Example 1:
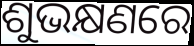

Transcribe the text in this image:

ଶୁଭକ୍ଷଣରେ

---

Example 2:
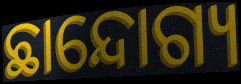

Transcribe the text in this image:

ଛାନ୍ଦୋଗ୍ୟ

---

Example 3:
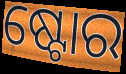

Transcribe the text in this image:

ଷ୍ଟୋର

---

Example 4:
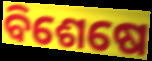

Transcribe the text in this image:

ବିଶେଷେ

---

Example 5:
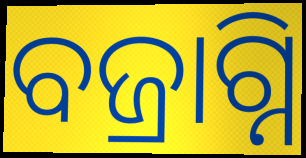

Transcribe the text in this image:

ବଜ୍ରାଗ୍ନି